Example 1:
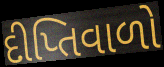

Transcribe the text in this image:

દીપ્તિવાળો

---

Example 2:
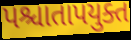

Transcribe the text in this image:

પશ્ચાતાપયુક્ત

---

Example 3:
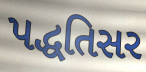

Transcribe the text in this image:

પદ્ધતિસર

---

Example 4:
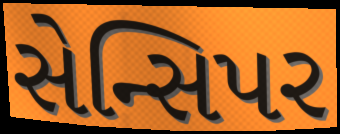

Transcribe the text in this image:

સેન્સિપર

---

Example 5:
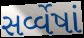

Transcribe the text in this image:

સર્વ્વેષાં